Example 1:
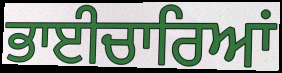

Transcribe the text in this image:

ਭਾਈਚਾਰਿਆਂ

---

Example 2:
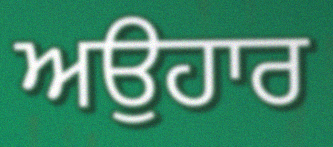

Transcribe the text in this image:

ਅਉਹਾਰ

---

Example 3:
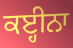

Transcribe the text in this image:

ਕੲ੍ਹੀਨਾ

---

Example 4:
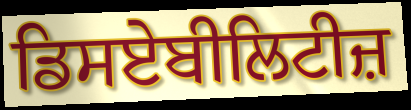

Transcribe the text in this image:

ਡਿਸਏਬੀਲਿਟੀਜ਼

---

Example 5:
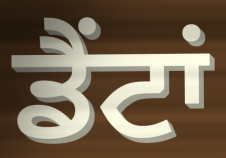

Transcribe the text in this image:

ਡੈਂਟਾਂ